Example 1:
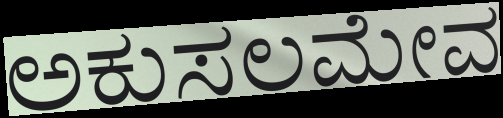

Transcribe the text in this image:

ಅಕುಸಲಮೇವ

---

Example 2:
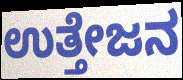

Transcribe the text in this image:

ಉತ್ತೇಜನ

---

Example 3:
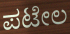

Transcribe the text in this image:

ಪಟೇಲ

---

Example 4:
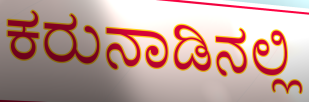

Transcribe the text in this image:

ಕರುನಾಡಿನಲ್ಲಿ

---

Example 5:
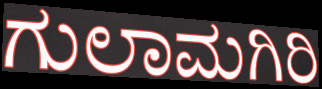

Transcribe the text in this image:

ಗುಲಾಮಗಿರಿ